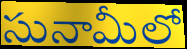
సునామీలో